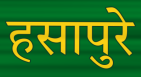
हसापुरे